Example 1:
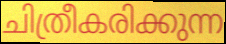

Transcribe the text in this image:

ചിത്രീകരിക്കുന്ന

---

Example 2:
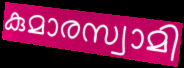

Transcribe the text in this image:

കുമാരസ്വാമി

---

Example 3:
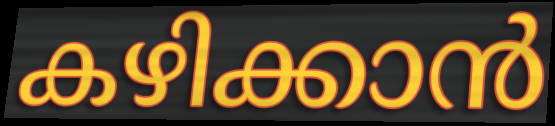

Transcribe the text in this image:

കഴിക്കാൻ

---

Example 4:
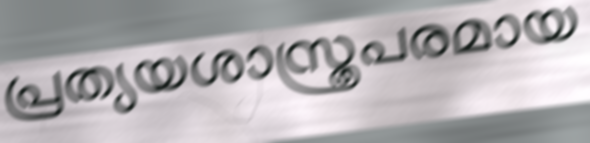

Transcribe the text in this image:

പ്രത്യയശാസ്ത്രപരമായ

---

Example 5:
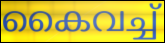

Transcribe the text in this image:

കൈവച്ച്